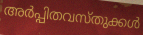
അർപ്പിതവസ്തുക്കൾ